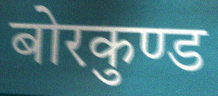
बोरकुण्ड